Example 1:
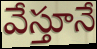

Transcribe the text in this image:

వేస్తూనే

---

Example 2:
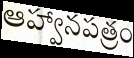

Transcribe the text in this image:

ఆహ్వానపత్రం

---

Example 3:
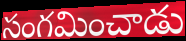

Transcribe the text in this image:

సంగమించాడు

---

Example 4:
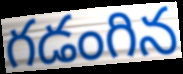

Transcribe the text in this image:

గడంగిన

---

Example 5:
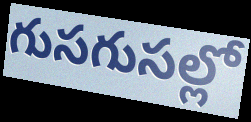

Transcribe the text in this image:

గుసగుసల్లో